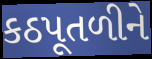
કઠપૂતળીને